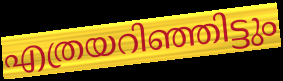
എത്രയറിഞ്ഞിട്ടും